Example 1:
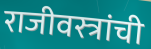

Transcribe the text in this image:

राजीवस्त्रांची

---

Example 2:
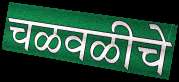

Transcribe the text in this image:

चळवळीचे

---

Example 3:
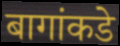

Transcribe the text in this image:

बागांकडे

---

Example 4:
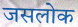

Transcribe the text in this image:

जसलोक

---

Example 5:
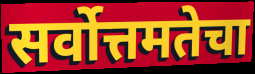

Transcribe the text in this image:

सर्वोत्तमतेचा